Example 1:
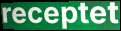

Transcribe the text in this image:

receptet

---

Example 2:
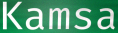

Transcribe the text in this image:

Kamsa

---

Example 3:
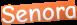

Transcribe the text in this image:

Senora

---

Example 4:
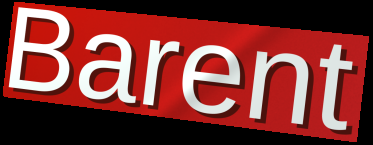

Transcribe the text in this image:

Barent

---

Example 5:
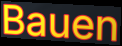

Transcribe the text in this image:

Bauen